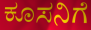
ಕೂಸನಿಗೆ